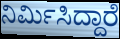
ನಿರ್ಮಿಸಿದ್ದಾರೆ